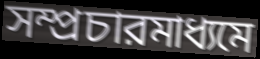
সম্প্রচারমাধ্যমে